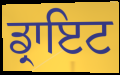
ਡ੍ਰਾਇਟ